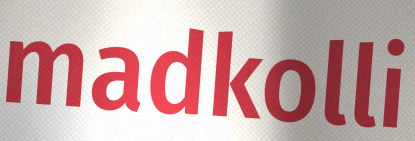
madkolli